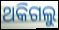
ଥକିଗଲୁ